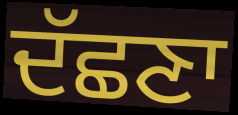
ਦੱਛਣਾ